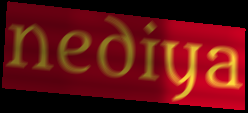
nediya